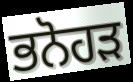
ਭਨੋਹੜ